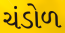
ચંડોળ